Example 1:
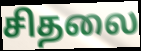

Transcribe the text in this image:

சிதலை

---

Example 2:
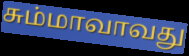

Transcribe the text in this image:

சும்மாவாவது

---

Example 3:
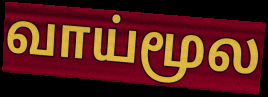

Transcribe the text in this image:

வாய்மூல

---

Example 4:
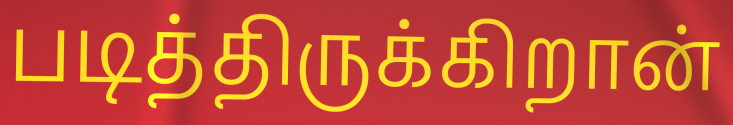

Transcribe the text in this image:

படித்திருக்கிறான்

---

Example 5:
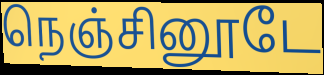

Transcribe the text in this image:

நெஞ்சினூடே